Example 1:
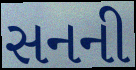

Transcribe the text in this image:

સનની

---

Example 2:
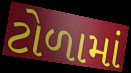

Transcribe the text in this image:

ટોળામાં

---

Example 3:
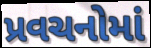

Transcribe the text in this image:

પ્રવચનોમાં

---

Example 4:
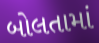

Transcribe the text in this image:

બોલતામાં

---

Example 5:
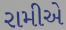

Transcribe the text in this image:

રામીએ